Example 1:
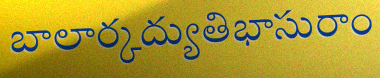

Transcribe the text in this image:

బాలార్కద్యుతిభాసురాం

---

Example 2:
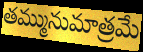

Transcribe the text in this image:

తమ్మునుమాత్రమే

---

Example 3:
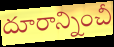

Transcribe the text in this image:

దూరాన్నించీ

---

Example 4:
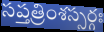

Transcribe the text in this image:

సప్తత్రింశస్సర్గః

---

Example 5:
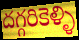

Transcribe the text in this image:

దగ్గరికెళ్ళి